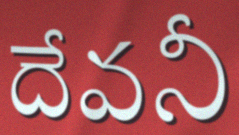
దేవనీ